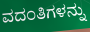
ವದಂತಿಗಳನ್ನು